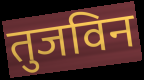
तुजविन